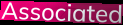
Associated